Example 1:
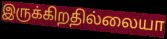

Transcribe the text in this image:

இருக்கிறதில்லையா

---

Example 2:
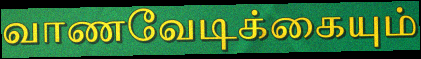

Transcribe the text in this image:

வாணவேடிக்கையும்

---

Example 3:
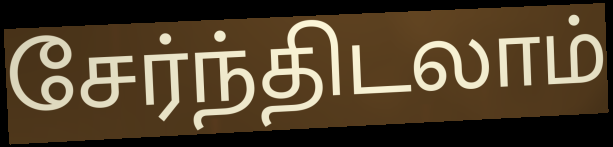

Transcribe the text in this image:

சேர்ந்திடலாம்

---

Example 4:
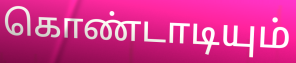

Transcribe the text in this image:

கொண்டாடியும்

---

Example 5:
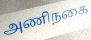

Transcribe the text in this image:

அணிநகை